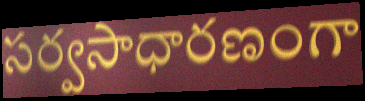
సర్వసాధారణంగా